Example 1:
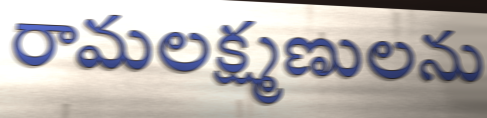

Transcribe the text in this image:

రామలక్ష్మణులను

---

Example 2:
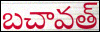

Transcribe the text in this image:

బచావత్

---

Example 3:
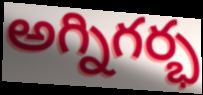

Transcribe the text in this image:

అగ్నిగర్భ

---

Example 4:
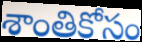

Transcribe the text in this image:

శాంతికోసం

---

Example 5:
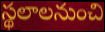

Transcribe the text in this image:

స్థలాలనుంచి